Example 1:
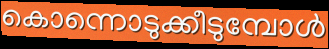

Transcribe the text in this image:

കൊന്നൊടുക്കീടുമ്പോൾ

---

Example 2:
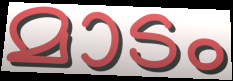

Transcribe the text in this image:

മാടം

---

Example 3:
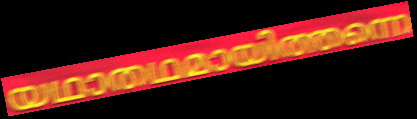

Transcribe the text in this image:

യഥാതഥമായിത്തന്നെ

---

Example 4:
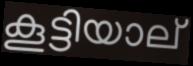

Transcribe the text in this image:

കൂട്ടിയാല്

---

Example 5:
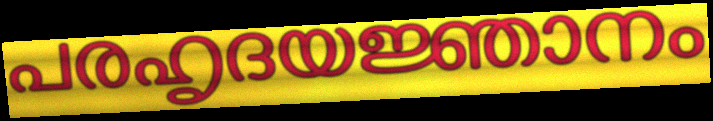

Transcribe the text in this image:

പരഹൃദയജ്ഞാനം